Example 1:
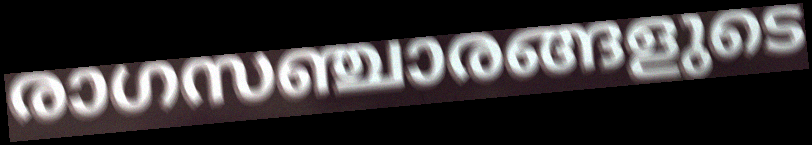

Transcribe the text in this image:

രാഗസഞ്ചാരങ്ങളുടെ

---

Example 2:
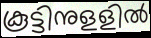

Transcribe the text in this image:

കൂട്ടിനുളളിൽ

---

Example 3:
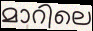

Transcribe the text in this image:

മാറിലെ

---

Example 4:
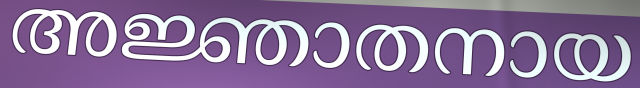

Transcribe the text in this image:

അജ്ഞാതനായ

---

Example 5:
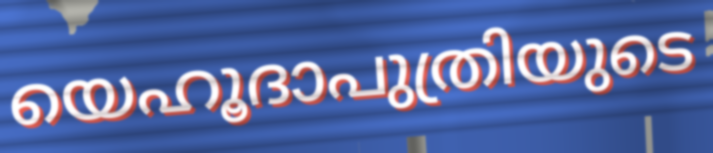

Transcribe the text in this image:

യെഹൂദാപുത്രിയുടെ